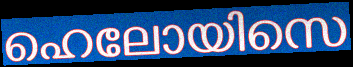
ഹെലോയിസെ